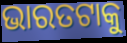
ଭାରତଟାକୁ